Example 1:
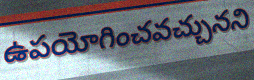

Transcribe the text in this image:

ఉపయోగించవచ్చునని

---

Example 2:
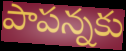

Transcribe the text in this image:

పాపన్నకు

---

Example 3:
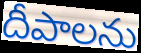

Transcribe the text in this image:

దీపాలను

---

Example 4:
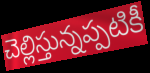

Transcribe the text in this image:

చెల్లిస్తున్నప్పటికీ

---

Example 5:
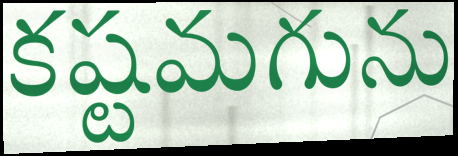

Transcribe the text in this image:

కష్టమగును